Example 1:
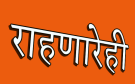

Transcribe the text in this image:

राहणारेही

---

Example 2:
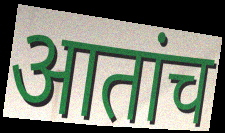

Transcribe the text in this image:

आतांच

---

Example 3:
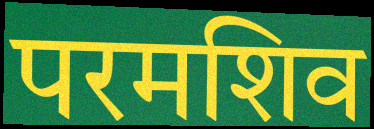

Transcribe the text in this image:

परमशिव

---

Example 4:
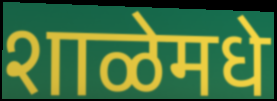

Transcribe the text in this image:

शाळेमधे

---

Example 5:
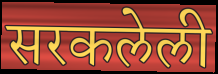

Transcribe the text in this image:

सरकलेली